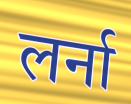
लर्ना